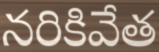
నరికివేత